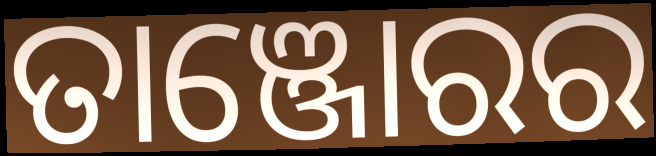
ତାଞ୍ଜୋରର